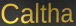
Caltha